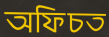
অফিচত